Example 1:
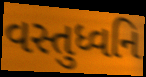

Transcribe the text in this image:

વસ્તુધ્વનિ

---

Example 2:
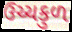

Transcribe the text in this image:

ઉચ્ચકુળ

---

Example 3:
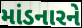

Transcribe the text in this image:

માંડનારને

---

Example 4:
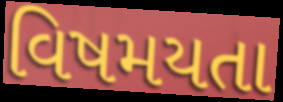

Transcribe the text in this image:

વિષમયતા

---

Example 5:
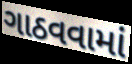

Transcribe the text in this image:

ગાઠવવામાં